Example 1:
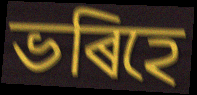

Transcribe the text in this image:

ভৰিহে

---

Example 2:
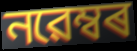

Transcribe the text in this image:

নৱেম্বৰ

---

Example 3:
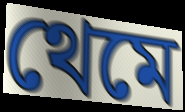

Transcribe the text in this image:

থেমে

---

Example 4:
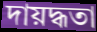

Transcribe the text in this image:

দায়দ্ধতা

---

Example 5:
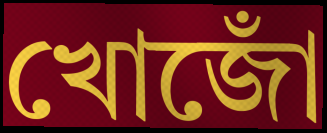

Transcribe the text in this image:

খোজোঁ